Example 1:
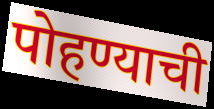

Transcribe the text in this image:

पोहण्याची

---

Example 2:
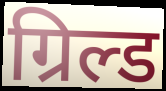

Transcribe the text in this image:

ग्रिल्ड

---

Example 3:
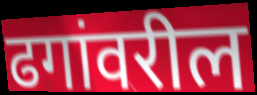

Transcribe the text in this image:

ढगांवरील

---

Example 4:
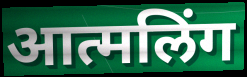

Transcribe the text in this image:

आत्मलिंग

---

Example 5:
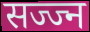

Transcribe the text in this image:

सज्ज्न